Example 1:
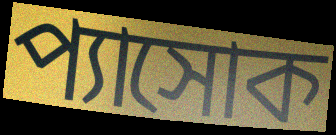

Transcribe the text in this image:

প্যাসোক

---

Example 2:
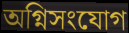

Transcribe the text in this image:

অগ্নিসংযোগ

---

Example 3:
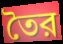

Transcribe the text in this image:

তৈর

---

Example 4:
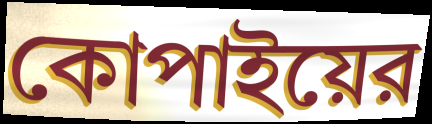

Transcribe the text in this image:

কোপাইয়ের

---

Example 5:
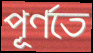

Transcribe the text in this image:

পূর্ণতে